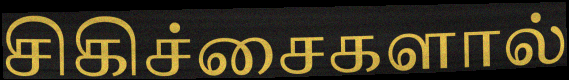
சிகிச்சைகளால்